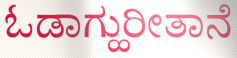
ಓಡಾಗ್ಹುರೀತಾನೆ